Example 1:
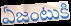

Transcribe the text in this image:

ఏజంటుకి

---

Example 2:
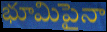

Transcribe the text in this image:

భూమిపైనా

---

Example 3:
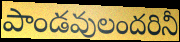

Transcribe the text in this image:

పాండవులందరినీ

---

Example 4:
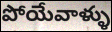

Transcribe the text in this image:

పోయేవాళ్ళు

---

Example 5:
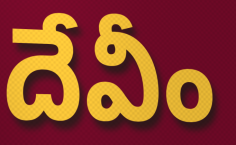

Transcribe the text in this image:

దేవీం